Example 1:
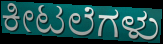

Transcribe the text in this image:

ಕೀಟಲೆಗಳು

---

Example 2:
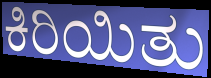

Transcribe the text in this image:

ಕಿರಿಯಿತು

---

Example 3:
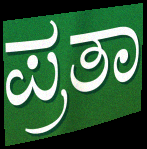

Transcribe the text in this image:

ಪ್ರತಾ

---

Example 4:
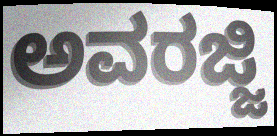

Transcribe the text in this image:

ಅವರಜ್ಜಿ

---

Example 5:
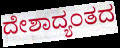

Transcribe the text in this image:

ದೇಶಾದ್ಯಂತದ